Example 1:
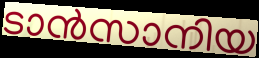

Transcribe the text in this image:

ടാൻസാനിയ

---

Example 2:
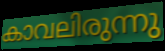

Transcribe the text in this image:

കാവലിരുന്നു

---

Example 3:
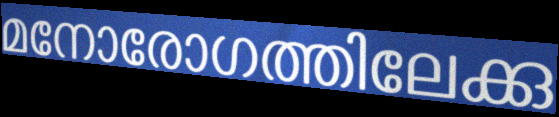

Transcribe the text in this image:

മനോരോഗത്തിലേക്കു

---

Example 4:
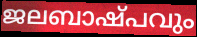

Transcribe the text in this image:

ജലബാഷ്പവും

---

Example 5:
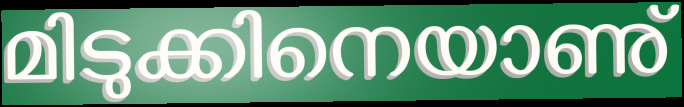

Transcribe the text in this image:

മിടുക്കിനെയാണു്